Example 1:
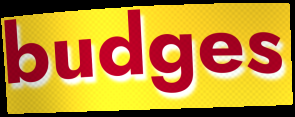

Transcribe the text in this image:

budges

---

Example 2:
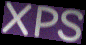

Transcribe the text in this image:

XPS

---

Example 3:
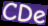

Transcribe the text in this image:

CDe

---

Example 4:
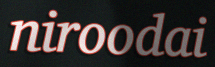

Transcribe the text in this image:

niroodai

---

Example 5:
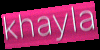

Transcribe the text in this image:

khayla